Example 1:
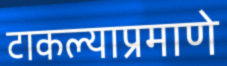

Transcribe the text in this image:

टाकल्याप्रमाणे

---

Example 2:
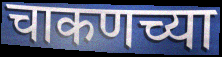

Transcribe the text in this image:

चाकणच्या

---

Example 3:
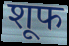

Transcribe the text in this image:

शूफ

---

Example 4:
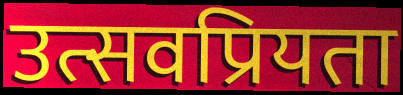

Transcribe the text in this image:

उत्सवप्रियता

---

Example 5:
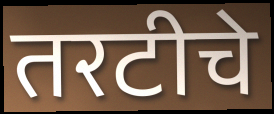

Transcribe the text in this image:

तरटीचे